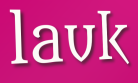
lauk